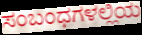
ಸಂಬಂಧಗಳಲ್ಲಿಯ